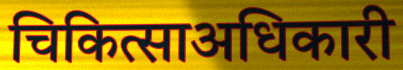
चिकित्साअधिकारी